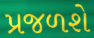
પ્રજળશે